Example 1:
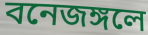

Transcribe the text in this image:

বনেজঙ্গলে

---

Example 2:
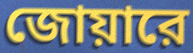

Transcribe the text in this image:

জোয়ারে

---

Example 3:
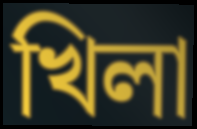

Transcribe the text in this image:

খিলা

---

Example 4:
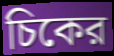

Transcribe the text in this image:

চিকের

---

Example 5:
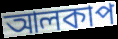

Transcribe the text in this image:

আলকাপ